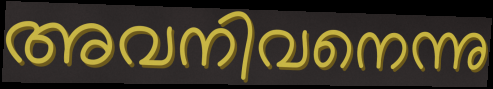
അവനിവനെന്നു